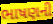
ભાષણની